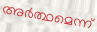
അർത്ഥമെന്ന്